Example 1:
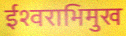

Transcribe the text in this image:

ईश्वराभिमुख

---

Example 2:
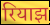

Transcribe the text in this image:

रियाझ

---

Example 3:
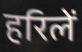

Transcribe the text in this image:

हरिलें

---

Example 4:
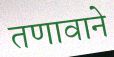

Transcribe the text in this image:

तणावाने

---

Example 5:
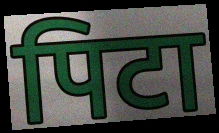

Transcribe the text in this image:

पिटा